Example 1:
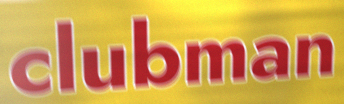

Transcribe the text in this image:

clubman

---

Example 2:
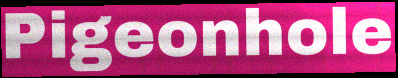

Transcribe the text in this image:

Pigeonhole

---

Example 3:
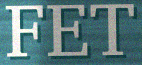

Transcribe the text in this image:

FET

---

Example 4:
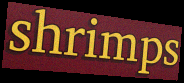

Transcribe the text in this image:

shrimps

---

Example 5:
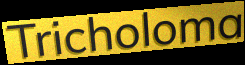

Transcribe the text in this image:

Tricholoma